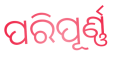
ପରିପୂର୍ଣ୍ଣ